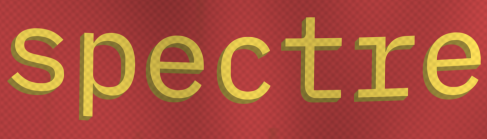
spectre